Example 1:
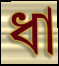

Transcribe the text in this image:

ধা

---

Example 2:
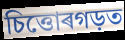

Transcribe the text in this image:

চিত্তোৰগড়ত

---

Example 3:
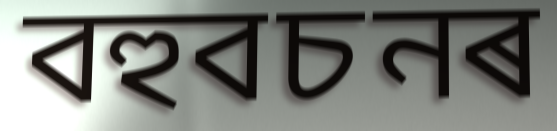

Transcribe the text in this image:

বহুবচনৰ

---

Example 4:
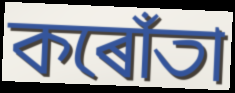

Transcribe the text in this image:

কৰোঁতা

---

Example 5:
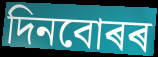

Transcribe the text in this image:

দিনবোৰৰ